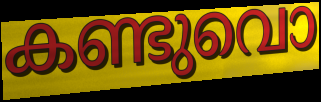
കണ്ടുവൊ